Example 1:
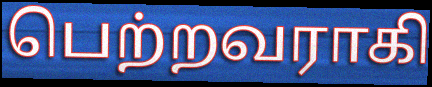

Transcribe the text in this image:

பெற்றவராகி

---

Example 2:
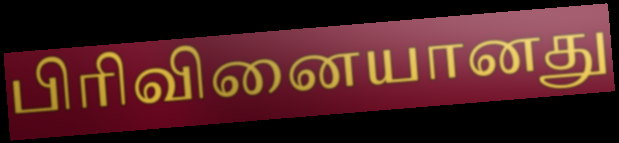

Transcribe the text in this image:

பிரிவினையானது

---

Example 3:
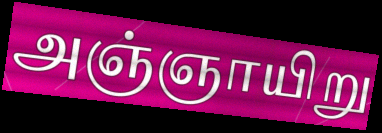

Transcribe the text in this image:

அஞ்ஞாயிறு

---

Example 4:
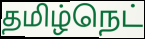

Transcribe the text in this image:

தமிழ்நெட்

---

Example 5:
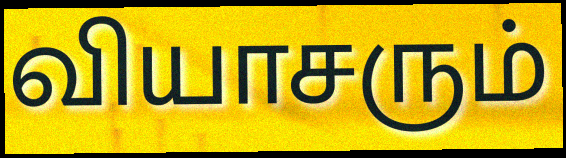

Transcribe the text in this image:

வியாசரும்